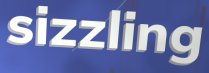
sizzling